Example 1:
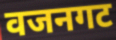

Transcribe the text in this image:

वजनगट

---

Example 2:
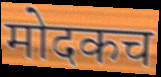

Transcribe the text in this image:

मोदकच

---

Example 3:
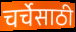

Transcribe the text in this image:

चर्चेसाठी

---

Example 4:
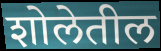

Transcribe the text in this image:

शोलेतील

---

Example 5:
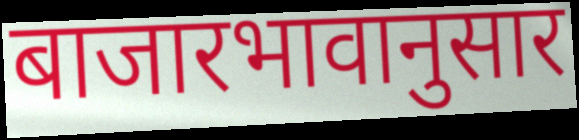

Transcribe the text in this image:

बाजारभावानुसार